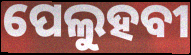
ପେଲୁହବୀ